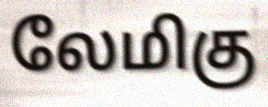
லேமிகு